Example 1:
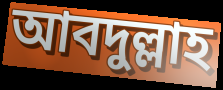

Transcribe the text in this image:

আবদুল্লাহ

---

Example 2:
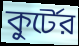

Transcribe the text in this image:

কুর্টের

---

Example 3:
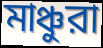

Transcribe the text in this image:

মাঞ্চুরা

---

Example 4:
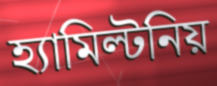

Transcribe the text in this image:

হ্যামিল্টনিয়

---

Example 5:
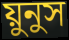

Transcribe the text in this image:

য়ুনুস